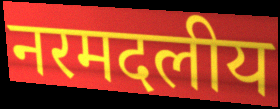
नरमदलीय